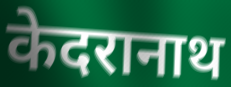
केदरानाथ